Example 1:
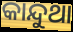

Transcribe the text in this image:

କାନ୍ଦୁଥା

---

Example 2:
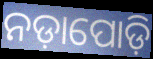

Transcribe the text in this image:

ନଡ଼ାପୋଡ଼ି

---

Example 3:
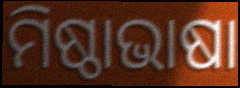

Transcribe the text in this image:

ମିଷ୍ଠାଭାଷା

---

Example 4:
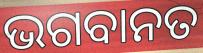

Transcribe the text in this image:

ଭଗବାନତ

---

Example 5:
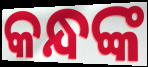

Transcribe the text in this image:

କନ୍ଧଙ୍କ